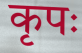
कृपः